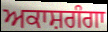
ਅਕਾਸ਼ਗੰਗਾ